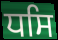
ਧਸਿ